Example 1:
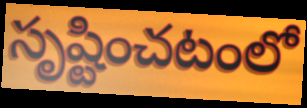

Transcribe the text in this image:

సృష్టించటంలో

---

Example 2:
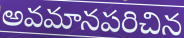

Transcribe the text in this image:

అవమానపరిచిన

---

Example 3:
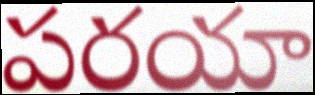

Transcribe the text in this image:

పరయా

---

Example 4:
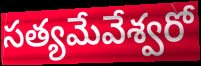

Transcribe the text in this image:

సత్యమేవేశ్వరో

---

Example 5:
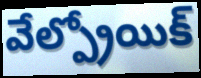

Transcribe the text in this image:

వేల్ప్రోయిక్